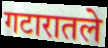
गटारातले